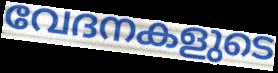
വേദനകളുടെ